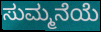
ಸುಮ್ಮನೆಯೆ